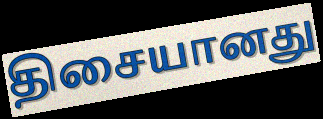
திசையானது